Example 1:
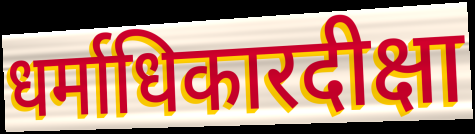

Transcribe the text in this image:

धर्माधिकारदीक्षा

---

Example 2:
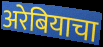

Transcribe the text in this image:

अरेबियाचा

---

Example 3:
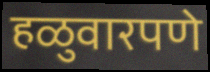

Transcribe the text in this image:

हळुवारपणे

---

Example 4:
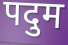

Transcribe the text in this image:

पदुम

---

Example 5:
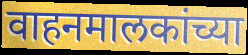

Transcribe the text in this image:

वाहनमालकांच्या